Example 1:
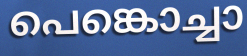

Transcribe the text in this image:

പെങ്കൊച്ചാ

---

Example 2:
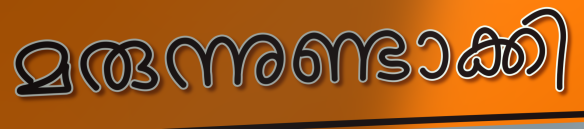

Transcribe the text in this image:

മരുന്നുണ്ടാക്കി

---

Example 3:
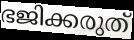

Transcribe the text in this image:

ഭജിക്കരുത്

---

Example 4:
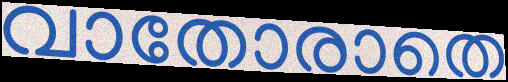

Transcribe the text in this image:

വാതോരാതെ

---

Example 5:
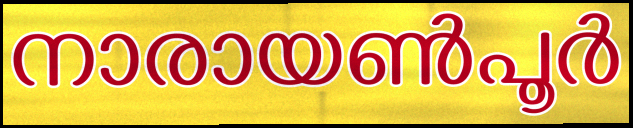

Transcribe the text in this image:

നാരായൺപൂർ